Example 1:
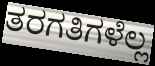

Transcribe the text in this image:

ತರಗತಿಗಳೆಲ್ಲ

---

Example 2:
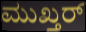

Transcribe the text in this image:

ಮುಖ್ತರ್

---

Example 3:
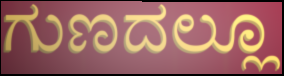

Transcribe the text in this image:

ಗುಣದಲ್ಲೂ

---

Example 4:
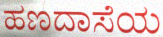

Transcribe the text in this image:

ಹಣದಾಸೆಯ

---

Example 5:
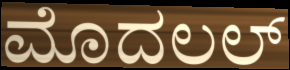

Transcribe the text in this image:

ಮೊದಲಲ್